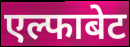
एल्फाबेट